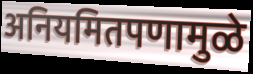
अनियमितपणामुळे